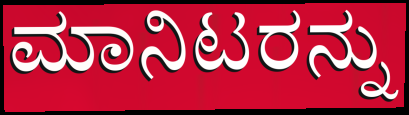
ಮಾನಿಟರನ್ನು